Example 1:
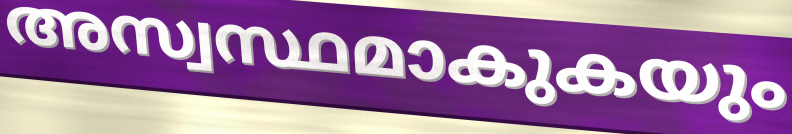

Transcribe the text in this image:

അസ്വസ്ഥമാകുകയും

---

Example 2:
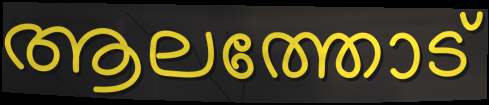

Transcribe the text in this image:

ആലത്തോട്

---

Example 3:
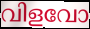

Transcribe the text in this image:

വിളവോ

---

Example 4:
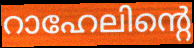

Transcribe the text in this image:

റാഹേലിന്റെ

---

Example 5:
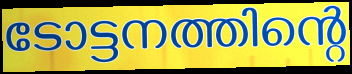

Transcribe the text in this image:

ടോട്ടനത്തിന്റെ